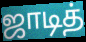
ஜாடித்